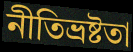
নীতিভ্রষ্টতা